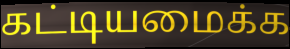
கட்டியமைக்க